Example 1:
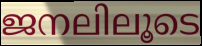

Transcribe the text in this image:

ജനലിലൂടെ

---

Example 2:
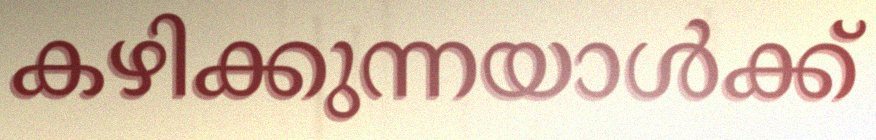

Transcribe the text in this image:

കഴിക്കുന്നയാൾക്ക്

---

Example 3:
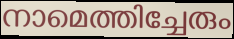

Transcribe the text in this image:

നാമെത്തിച്ചേരും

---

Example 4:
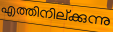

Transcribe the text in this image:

എത്തിനില്ക്കുന്നു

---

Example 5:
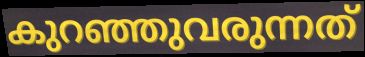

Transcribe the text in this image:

കുറഞ്ഞുവരുന്നത്